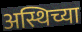
अस्थिच्या